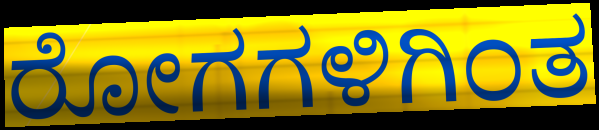
ರೋಗಗಳಿಗಿಂತ